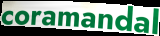
coramandal